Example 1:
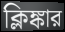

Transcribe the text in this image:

ক্লিঙ্কার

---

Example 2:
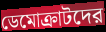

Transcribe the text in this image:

ডেমোক্রাটদের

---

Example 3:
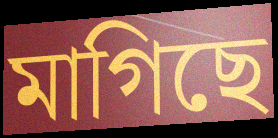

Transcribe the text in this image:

মাগিছে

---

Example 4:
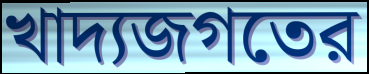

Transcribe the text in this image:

খাদ্যজগতের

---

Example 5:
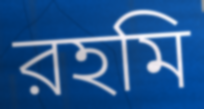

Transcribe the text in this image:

রহমি